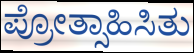
ಪ್ರೋತ್ಸಾಹಿಸಿತು